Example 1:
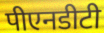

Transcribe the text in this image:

पीएनडीटी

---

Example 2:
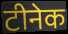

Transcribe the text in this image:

टीनेक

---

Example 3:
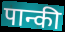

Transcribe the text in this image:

पान्की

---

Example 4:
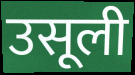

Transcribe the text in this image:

उसूली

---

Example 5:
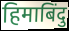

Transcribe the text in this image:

हिमाबिंदु